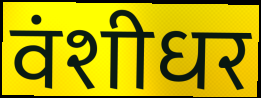
वंशीधर